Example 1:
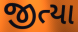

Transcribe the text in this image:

જીત્યા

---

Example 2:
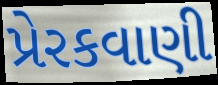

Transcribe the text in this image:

પ્રેરકવાણી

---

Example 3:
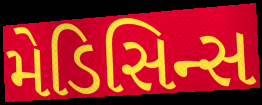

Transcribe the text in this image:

મેડિસિન્સ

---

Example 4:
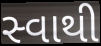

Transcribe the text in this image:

સ્વાથી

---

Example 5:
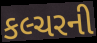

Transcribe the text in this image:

કલ્ચરની